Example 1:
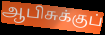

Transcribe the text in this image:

ஆபிசுக்குப்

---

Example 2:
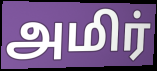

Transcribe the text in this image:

அமிர்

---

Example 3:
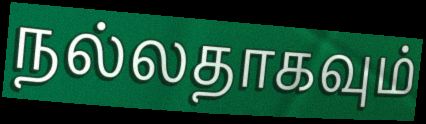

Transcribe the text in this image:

நல்லதாகவும்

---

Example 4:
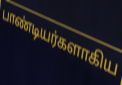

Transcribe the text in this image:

பாண்டியர்களாகிய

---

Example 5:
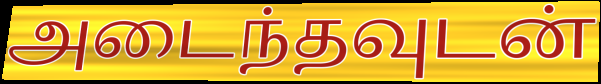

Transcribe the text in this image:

அடைந்தவுடன்